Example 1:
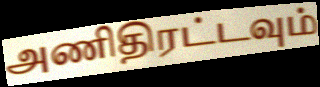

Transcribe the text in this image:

அணிதிரட்டவும்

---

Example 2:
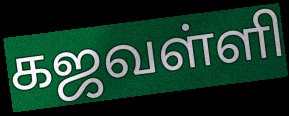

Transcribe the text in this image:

கஜவள்ளி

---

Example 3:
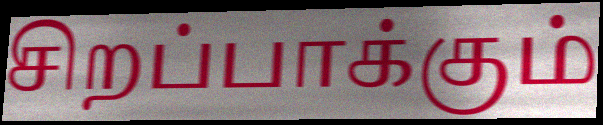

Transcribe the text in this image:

சிறப்பாக்கும்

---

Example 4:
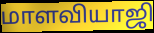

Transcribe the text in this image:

மாளவியாஜி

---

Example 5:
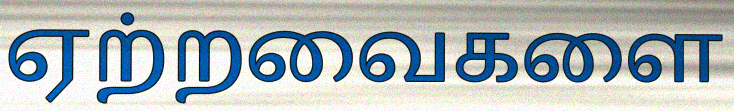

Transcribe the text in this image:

ஏற்றவைகளை